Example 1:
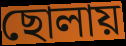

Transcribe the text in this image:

ছোলায়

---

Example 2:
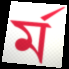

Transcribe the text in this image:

র্ম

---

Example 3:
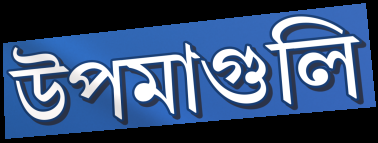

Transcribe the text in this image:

উপমাগুলি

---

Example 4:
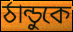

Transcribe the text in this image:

ঠান্ডুকে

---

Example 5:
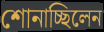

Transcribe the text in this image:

শোনাচ্ছিলেন